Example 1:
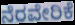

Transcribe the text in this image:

ನೆರವೇರಿಕೆ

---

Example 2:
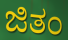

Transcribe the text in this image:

ಜಿತಂ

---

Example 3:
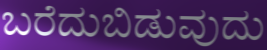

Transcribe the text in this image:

ಬರೆದುಬಿಡುವುದು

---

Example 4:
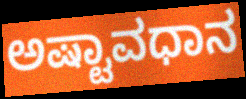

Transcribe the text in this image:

ಅಷ್ಟಾವಧಾನ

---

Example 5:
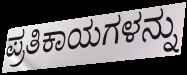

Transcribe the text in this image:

ಪ್ರತಿಕಾಯಗಳನ್ನು